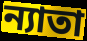
ন্যাতা